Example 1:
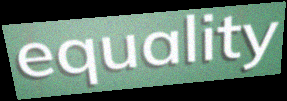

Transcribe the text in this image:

equality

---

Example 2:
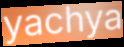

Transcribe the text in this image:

yachya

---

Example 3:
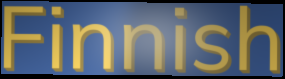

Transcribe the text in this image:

Finnish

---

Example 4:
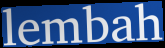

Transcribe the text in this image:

lembah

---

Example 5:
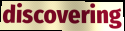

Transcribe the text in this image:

discovering